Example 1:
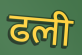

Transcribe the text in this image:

ढली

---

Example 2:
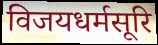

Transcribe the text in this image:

विजयधर्मसूरि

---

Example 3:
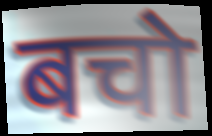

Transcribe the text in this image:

बचो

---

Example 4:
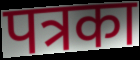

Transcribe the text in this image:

पत्रका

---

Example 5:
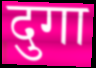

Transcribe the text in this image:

दुगा